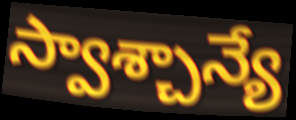
స్వాశ్చాన్యే